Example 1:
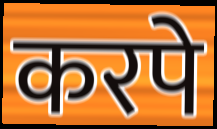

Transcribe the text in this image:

करपे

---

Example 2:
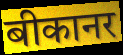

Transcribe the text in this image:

बीकानर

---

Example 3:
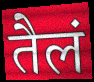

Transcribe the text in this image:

तैलं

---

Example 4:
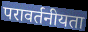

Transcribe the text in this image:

परावर्तनीयता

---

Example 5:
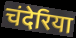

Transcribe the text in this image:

चंदेरिया